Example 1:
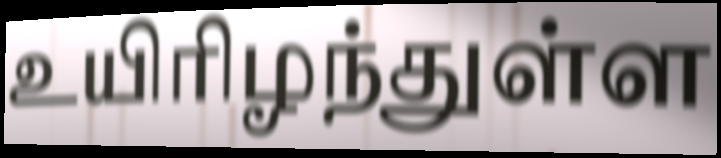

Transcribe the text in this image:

உயிரிழந்துள்ள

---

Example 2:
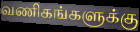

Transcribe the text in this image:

வணிகங்களுக்கு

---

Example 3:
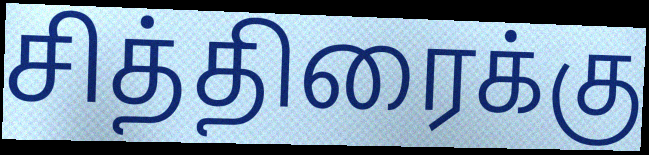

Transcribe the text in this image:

சித்திரைக்கு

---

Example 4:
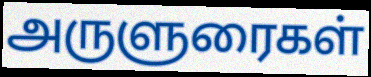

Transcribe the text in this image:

அருளுரைகள்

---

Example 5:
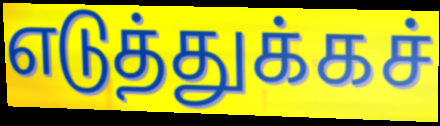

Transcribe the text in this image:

எடுத்துக்கச்